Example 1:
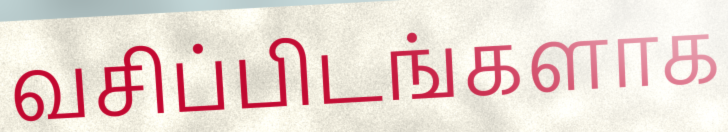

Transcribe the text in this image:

வசிப்பிடங்களாக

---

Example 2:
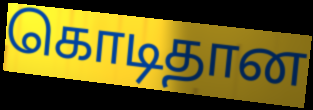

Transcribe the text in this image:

கொடிதான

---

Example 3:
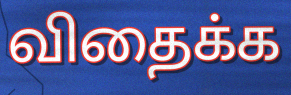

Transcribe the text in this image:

விதைக்க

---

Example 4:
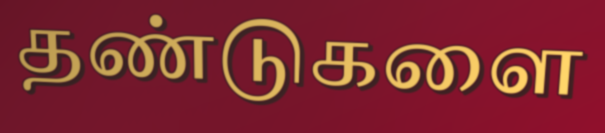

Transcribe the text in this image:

தண்டுகளை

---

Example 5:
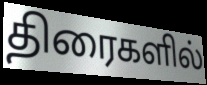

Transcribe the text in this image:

திரைகளில்